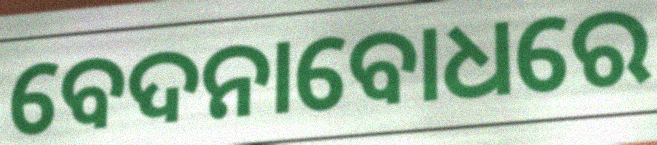
ବେଦନାବୋଧରେ